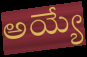
అయ్యే